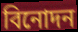
বিনোদন